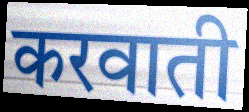
करवाती